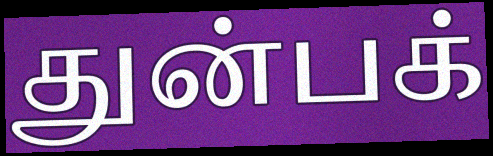
துன்பக்